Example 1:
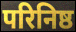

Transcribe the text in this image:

परिनिष्ठ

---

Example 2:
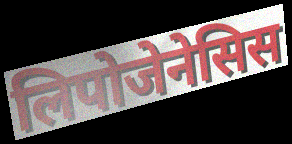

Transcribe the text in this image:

लिपोजेनेसिस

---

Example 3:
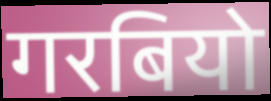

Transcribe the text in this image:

गरबियो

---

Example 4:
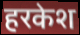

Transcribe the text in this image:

हरकेश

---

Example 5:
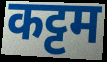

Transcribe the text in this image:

कट्टम